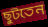
ছুটতেন